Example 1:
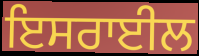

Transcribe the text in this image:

ਇਸਰਾਈਲ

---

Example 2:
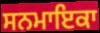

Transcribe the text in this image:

ਸਨਮਾਇਕਾ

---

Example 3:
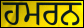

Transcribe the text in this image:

ਹਮਰਨ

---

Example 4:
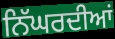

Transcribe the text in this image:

ਨਿੱਘਰਦੀਆਂ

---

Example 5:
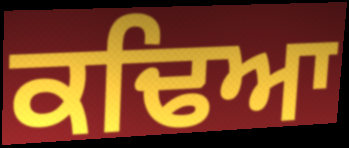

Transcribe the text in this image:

ਕਢਿਆ